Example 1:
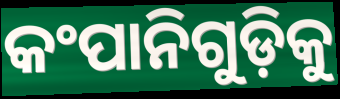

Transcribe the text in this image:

କଂପାନିଗୁଡ଼ିକୁ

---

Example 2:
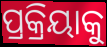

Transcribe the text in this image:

ପ୍ରକ୍ରିୟାକୁ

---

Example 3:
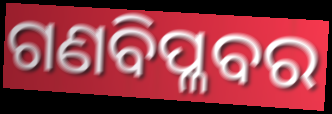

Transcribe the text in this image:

ଗଣବିପ୍ଳବର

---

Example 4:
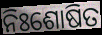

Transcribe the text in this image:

ନିଃଶୋଷିତ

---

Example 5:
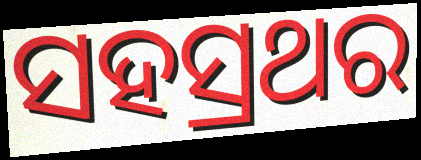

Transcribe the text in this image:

ସହସ୍ରଥର